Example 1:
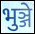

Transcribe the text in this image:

भुञ्जे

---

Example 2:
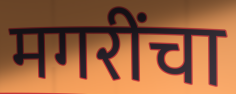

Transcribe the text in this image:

मगरींचा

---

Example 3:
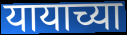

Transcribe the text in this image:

यायाच्या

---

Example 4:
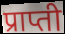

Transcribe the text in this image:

प्राप्ती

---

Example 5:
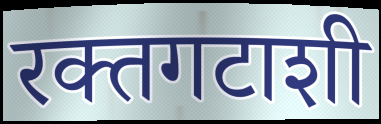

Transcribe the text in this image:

रक्तगटाशी